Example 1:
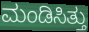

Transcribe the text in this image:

ಮಂಡಿಸಿತ್ತು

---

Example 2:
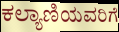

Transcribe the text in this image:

ಕಲ್ಯಾಣಿಯವರಿಗೆ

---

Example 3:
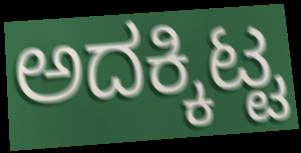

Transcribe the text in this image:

ಅದಕ್ಕಿಟ್ಟ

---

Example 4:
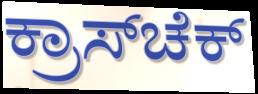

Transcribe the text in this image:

ಕ್ರಾಸ್‌ಚೆಕ್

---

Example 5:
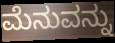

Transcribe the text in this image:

ಮೆನುವನ್ನು